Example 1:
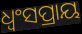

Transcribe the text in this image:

ଧ୍ୱଂସପ୍ରାୟ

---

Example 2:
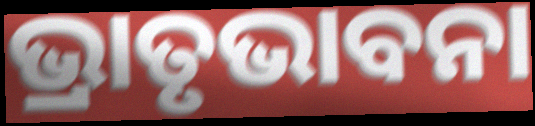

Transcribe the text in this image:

ଭ୍ରାତୃଭାବନା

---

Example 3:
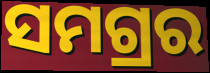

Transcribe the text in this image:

ସମଗ୍ରର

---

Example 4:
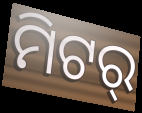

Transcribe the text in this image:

ମିଟର୍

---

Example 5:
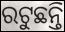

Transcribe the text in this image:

ରଟୁଛନ୍ତି